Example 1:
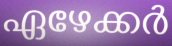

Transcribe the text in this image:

ഏഴേക്കർ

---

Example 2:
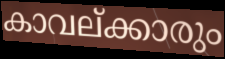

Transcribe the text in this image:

കാവല്ക്കാരും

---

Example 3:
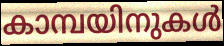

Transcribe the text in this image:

കാമ്പയിനുകൾ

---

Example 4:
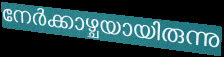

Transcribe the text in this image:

നേർക്കാഴ്ചയായിരുന്നു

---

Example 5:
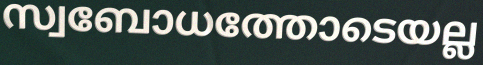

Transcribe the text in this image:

സ്വബോധത്തോടെയല്ല